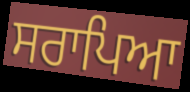
ਸਰਾਪਿਆ